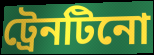
ট্রেনটিনো